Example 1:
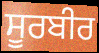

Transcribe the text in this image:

ਸੂਰਬੀਰ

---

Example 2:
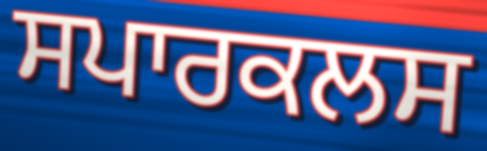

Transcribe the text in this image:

ਸਪਾਰਕਲਸ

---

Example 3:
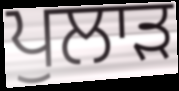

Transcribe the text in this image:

ਪੁਲਾੜ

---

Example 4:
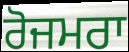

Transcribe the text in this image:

ਰੋਜਮਰਾ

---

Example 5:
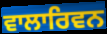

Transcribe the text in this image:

ਵਾਲਾਰਿਵਨ